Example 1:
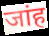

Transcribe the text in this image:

जांह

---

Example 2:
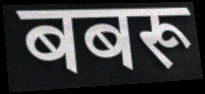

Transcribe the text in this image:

बबरू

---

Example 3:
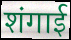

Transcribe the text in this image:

शंगाई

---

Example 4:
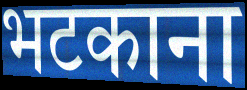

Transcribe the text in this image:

भटकाना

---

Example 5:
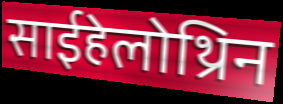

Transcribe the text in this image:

साईहेलोथ्रिन